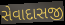
સેવાદાસજી